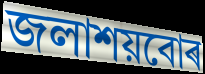
জলাশয়বোৰ